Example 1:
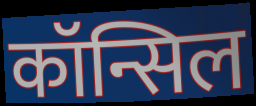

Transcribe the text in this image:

कॉन्सिल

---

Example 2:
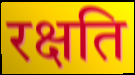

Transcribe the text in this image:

रक्षति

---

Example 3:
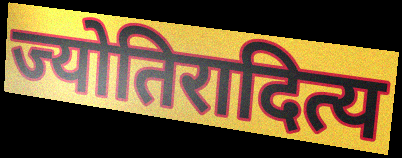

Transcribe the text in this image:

ज्योतिरादित्य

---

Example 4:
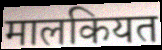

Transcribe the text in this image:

मालकियत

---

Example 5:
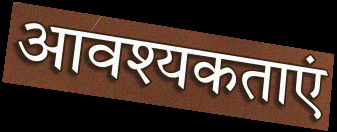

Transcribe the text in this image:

आवश्‍यकताएं